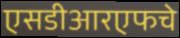
एसडीआरएफचे